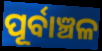
ପୂର୍ବାଞ୍ଚଳ